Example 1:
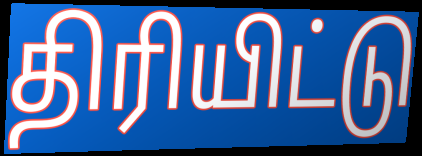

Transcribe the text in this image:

திரியிட்டு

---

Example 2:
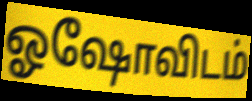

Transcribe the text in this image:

ஓஷோவிடம்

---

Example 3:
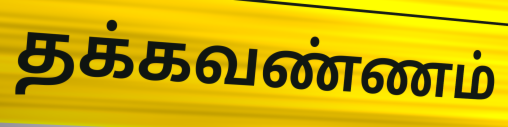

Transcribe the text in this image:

தக்கவண்ணம்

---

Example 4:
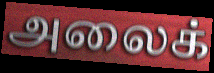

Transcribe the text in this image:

அலைக்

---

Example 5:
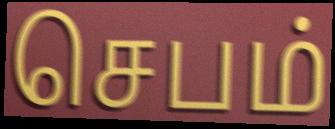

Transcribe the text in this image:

செபம்